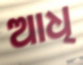
ଆଧି